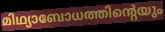
മിഥ്യാബോധത്തിന്റെയും